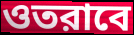
ওতরাবে